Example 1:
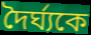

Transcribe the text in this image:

দৈর্ঘ্যকে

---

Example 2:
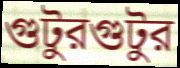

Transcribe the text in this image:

গুটুরগুটুর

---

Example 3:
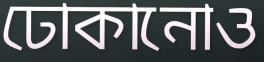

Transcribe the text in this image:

ঢোকানোও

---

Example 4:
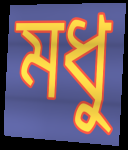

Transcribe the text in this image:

মধু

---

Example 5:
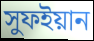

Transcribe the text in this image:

সুফইয়ান